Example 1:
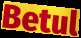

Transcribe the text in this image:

Betul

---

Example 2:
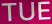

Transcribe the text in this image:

TUE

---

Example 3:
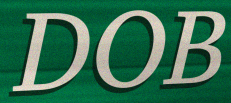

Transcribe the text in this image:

DOB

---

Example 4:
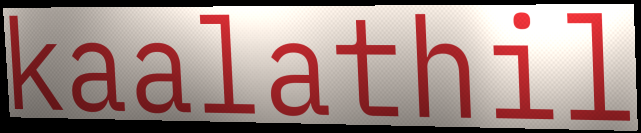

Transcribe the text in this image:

kaalathil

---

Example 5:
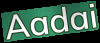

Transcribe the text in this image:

Aadai